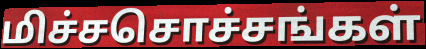
மிச்சசொச்சங்கள்